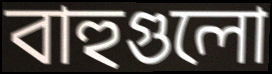
বাহুগুলো